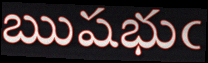
ఋషభుఁ